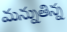
మన్నుతిన్న